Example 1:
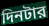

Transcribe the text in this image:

দিনটার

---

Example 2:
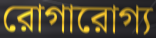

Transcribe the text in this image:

রোগারোগ্য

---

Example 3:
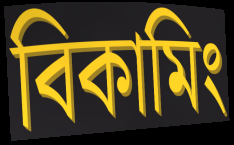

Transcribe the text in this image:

বিকামিং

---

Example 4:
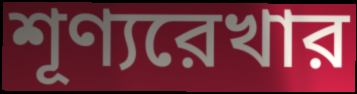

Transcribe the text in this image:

শূণ্যরেখার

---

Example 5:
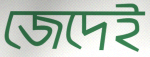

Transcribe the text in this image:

জেদেই